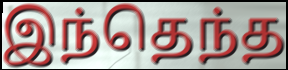
இந்தெந்த